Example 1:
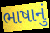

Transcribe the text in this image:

ભાષાનું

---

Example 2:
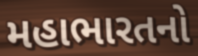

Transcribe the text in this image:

મહાભારતનો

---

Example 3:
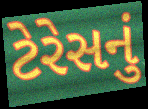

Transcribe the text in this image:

ટેરેસનું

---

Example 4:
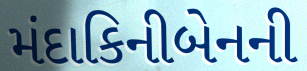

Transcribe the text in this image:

મંદાકિનીબેનની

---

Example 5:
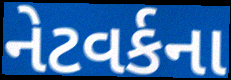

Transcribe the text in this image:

નેટવર્કના